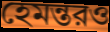
হেমন্তরও